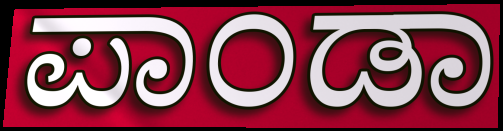
ಪಾಂಡಾ